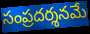
సంప్రదర్శనమే